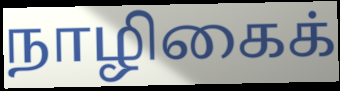
நாழிகைக்